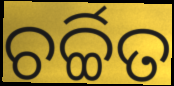
ଚର୍ଚ୍ଚିତ